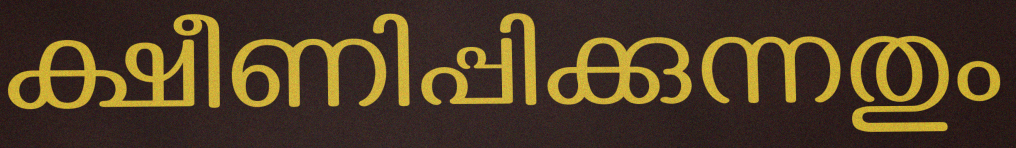
ക്ഷീണിപ്പിക്കുന്നതും